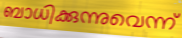
ബാധിക്കുന്നുവെന്ന്